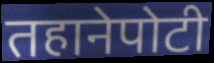
तहानेपोटी